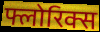
फ्लोरिक्स